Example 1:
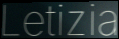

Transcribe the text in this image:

Letizia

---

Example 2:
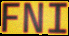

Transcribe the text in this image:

FNI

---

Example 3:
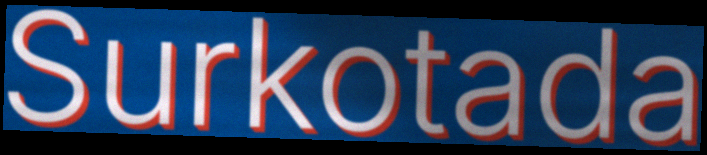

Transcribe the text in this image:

Surkotada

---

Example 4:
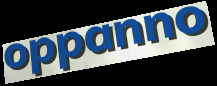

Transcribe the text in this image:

oppanno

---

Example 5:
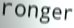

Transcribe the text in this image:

ronger